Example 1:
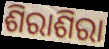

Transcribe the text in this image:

ଶିରାଶିରା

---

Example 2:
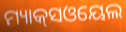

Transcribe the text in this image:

ମ୍ୟାକ୍‌ସଓୟେଲ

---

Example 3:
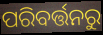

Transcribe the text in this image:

ପରିବର୍ତ୍ତନରୁ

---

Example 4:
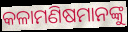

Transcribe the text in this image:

କଳାମଣିଷମାନଙ୍କୁ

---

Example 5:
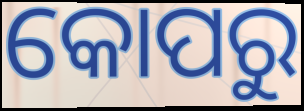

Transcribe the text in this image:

କୋପରୁ